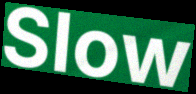
Slow